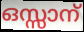
ഒസ്സാന്